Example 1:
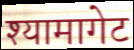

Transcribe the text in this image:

श्यामागेट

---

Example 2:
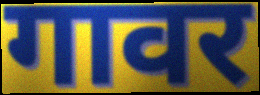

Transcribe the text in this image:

गावर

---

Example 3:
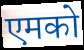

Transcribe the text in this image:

एमको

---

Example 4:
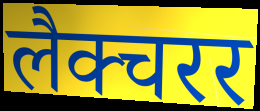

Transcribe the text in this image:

लैक्चरर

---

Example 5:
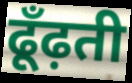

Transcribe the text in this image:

ढूँढ़ती